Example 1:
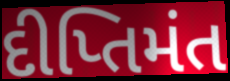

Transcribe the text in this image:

દીપ્તિમંત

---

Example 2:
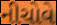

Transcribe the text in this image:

નીચોવે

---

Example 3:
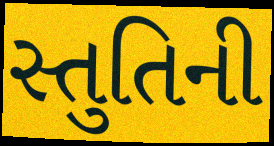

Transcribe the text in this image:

સ્તુતિની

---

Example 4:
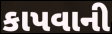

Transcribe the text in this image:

કાપવાની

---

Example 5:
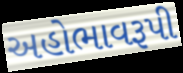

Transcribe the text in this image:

અહોભાવરૂપી